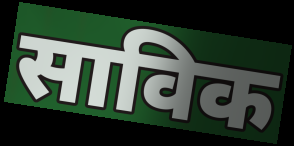
साविक